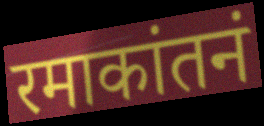
रमाकांतनं